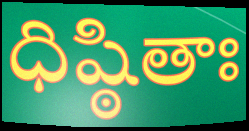
ధిష్ఠితాః